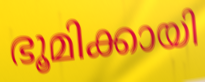
ഭൂമിക്കായി